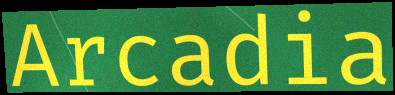
Arcadia